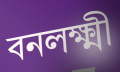
বনলক্ষ্মী